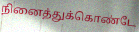
நினைத்துக்கொண்டே